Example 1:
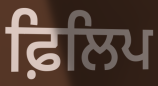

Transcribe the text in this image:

ਫ਼ਿਲਿਪ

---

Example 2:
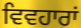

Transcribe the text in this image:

ਵਿਵਹਾਰਾਂ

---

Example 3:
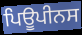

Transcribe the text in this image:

ਪਿਊਪੀਨਸ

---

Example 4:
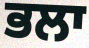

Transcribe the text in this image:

ਭਲਾ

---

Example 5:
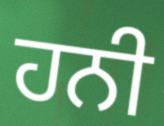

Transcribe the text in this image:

ਹਨੀ